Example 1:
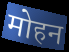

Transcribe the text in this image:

मोहन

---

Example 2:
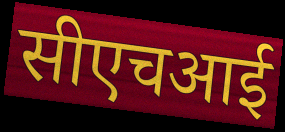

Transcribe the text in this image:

सीएचआई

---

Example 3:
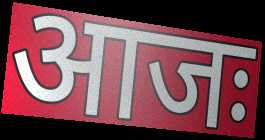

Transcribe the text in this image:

आजः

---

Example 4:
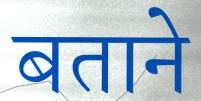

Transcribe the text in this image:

बताने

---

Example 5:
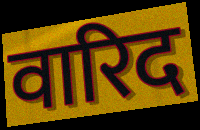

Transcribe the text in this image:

वारिद